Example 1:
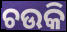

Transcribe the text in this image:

ଚଉକି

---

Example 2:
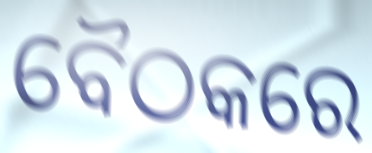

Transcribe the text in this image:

ବୈଠକରେ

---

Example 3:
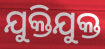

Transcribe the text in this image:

ଯୁକ୍ତିଯୁକ୍ତ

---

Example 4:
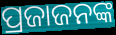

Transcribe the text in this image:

ପ୍ରଜାଜନଙ୍କ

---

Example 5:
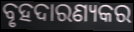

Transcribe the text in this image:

ବୃହଦାରଣ୍ୟକର